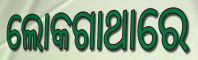
ଲୋକଗାଥାରେ